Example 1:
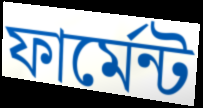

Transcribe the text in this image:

ফার্মেন্ট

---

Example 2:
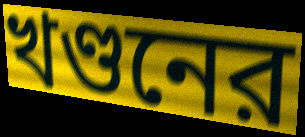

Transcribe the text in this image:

খণ্ডনের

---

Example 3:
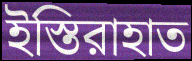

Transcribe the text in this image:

ইস্তিরাহাত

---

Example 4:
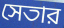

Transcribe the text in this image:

সেতার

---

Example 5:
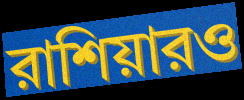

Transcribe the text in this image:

রাশিয়ারও